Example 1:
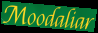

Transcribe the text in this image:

Moodaliar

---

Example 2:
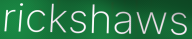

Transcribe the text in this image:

rickshaws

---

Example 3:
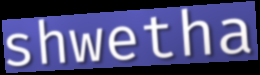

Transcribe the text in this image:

shwetha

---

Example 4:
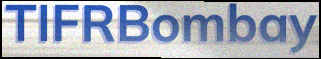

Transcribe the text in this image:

TIFRBombay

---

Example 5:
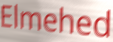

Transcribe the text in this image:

Elmehed